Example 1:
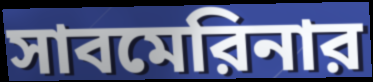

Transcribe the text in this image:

সাবমেরিনার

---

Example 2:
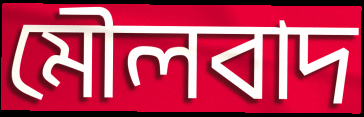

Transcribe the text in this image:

মৌলবাদ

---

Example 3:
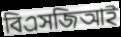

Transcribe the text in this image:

বিএসজিআই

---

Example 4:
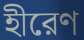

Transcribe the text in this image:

হীরেণ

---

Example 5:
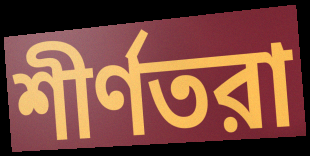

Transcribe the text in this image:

শীর্ণতরা